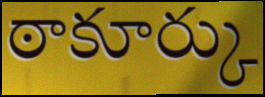
ఠాకూర్కు